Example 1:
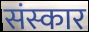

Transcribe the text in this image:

संस्‍कार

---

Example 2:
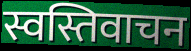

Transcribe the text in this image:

स्वस्तिवाचन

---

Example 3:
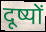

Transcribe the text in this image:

दूष्यों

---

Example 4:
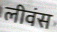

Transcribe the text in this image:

लीवंस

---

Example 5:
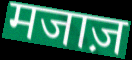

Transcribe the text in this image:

मजाज़